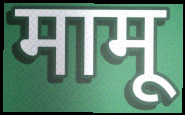
मामू